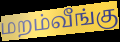
மறம்வீங்கு